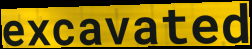
excavated